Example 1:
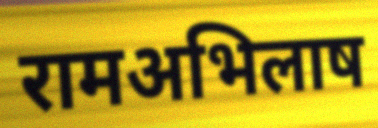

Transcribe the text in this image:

रामअभिलाष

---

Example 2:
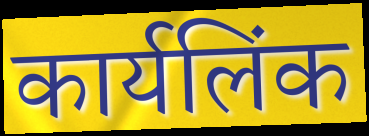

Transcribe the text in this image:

कार्यलिंक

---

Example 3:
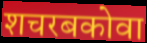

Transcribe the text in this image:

शचरबकोवा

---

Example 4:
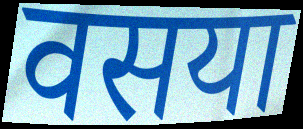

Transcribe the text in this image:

वसया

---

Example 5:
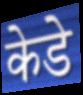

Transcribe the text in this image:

केडे